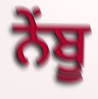
ਨੇਂਬੂ